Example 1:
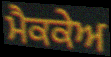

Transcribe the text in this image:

ਮੈਕਕੇਅ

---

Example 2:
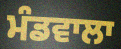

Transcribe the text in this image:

ਮੰਡਵਾਲਾ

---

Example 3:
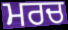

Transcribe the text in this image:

ਮਰਚ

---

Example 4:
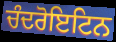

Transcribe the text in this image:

ਚੰਦਰੋਇਟਿਨ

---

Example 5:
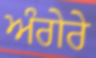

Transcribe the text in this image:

ਅੰਗੇਰੇ